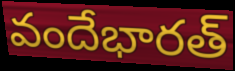
వందేభారత్